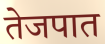
तेजपात